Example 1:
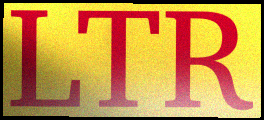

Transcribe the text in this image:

LTR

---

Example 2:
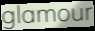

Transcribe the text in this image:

glamour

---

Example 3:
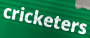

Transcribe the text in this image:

cricketers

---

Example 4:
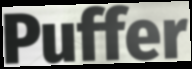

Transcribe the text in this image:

Puffer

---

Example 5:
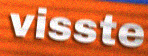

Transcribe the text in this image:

visste